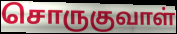
சொருகுவாள்